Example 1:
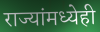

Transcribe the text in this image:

राज्यांमध्येही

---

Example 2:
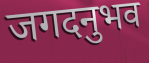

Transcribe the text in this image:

जगदनुभव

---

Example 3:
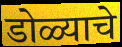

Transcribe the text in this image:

डोळ्याचे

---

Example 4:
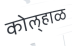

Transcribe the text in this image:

कोल्हाळ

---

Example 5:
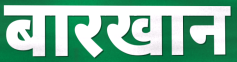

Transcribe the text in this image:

बारखान